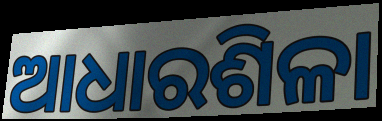
ଆଧାରଶିଳା